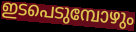
ഇടപെടുമ്പോഴും